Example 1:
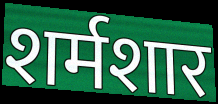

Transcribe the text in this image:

शर्मशार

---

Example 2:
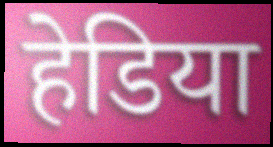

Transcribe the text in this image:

हेडिया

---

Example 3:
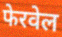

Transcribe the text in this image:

फेरवेल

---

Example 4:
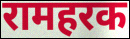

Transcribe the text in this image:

रामहरक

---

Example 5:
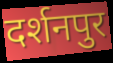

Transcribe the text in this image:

दर्शनपुर